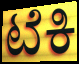
ಟೆಕಿ